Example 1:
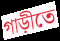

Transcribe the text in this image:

গাড়ীতে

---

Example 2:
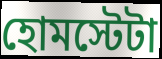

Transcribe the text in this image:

হোমস্টেটা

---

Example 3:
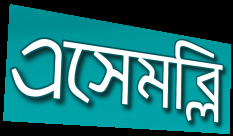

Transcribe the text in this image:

এসেমব্লি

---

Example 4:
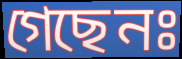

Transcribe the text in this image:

গেছেনঃ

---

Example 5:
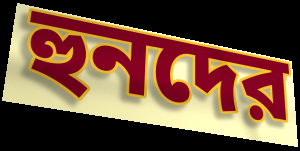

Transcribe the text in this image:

হুনদের